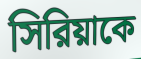
সিরিয়াকে